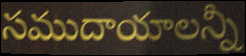
సముదాయాలన్నీ